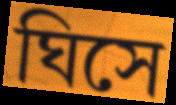
ঘিসে